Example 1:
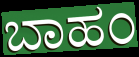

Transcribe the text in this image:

ಬಾಹಂ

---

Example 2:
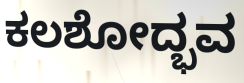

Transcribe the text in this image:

ಕಲಶೋದ್ಭವ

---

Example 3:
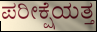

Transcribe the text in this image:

ಪರೀಕ್ಷೆಯತ್ತ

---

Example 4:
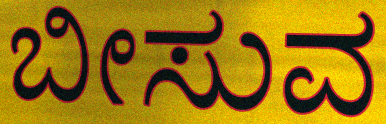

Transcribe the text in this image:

ಬೀಸುವ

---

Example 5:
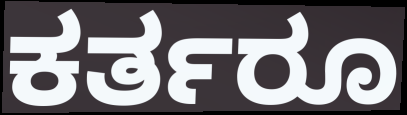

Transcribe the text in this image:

ಕರ್ತರೂ